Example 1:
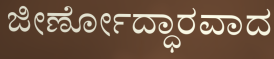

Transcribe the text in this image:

ಜೀರ್ಣೋದ್ಧಾರವಾದ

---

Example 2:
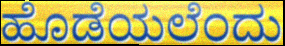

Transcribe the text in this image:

ಹೊಡೆಯಲೆಂದು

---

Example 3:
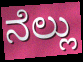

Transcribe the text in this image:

ನೆಲ್ಲು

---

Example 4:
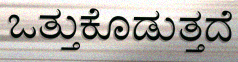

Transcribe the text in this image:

ಒತ್ತುಕೊಡುತ್ತದೆ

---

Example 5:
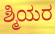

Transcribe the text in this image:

ಶ್ಮಿಯರ